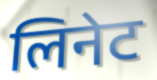
लिनेट